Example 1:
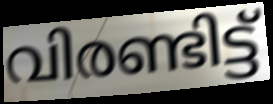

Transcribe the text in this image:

വിരണ്ടിട്ട്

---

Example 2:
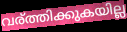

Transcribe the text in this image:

വര്ത്തിക്കുകയില്ല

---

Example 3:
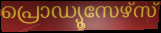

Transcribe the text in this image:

പ്രൊഡ്യൂസേഴ്സ്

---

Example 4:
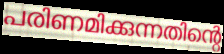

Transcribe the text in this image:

പരിണമിക്കുന്നതിന്റെ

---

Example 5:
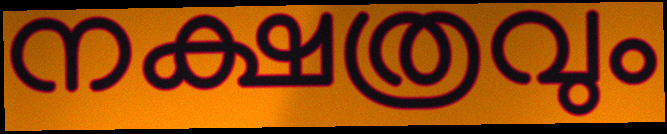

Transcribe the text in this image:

നക്ഷത്രവും